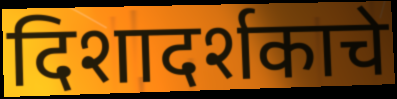
दिशादर्शकाचे